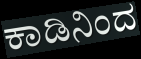
ಕಾಡಿನಿಂದ